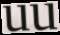
uu